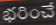
భరించే